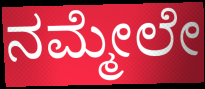
ನಮ್ಮೇಲೇ